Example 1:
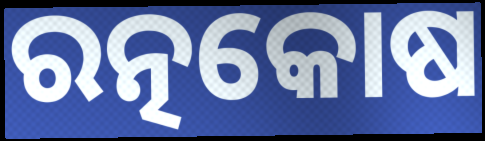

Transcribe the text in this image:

ରତ୍ନକୋଷ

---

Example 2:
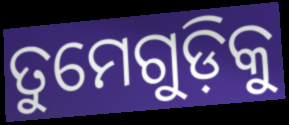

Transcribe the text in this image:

ତୁମେଗୁଡ଼ିକୁ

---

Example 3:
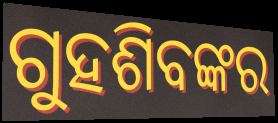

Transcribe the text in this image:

ଗୁହଶିବଙ୍କର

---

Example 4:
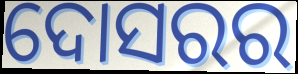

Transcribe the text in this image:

ଦୋସରର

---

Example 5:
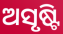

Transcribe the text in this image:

ଅସୃଷ୍ଟି